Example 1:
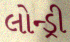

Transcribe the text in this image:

લોન્ડ્રી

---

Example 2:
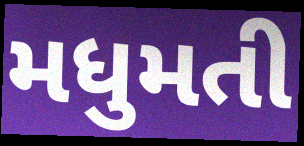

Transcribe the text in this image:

મધુમતી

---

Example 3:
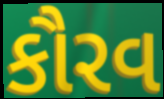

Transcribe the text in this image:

કૌરવ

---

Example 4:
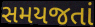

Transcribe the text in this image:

સમયજતાં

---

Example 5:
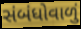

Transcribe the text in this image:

સંબંધોવાળું